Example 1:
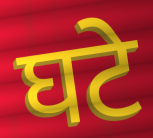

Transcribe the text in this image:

घटे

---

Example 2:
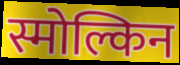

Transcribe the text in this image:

स्मोल्किन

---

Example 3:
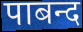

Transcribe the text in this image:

पाबन्द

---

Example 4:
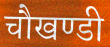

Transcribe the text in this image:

चौखण्डी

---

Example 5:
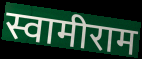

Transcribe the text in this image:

स्वामीराम